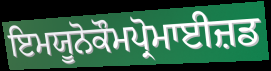
ਇਮਯੂਨੋਕੌਮਪ੍ਰੋਮਾਈਜ਼ਡ